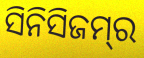
ସିନିସିଜମ୍‌ର